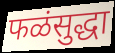
फळंसुद्धा